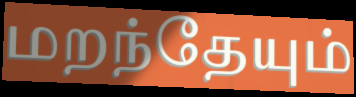
மறந்தேயும்